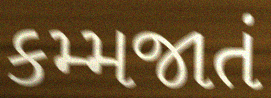
કમ્મજાતં